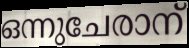
ഒന്നുചേരാന്